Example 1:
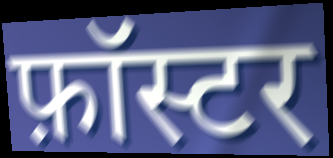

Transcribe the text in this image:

फ़ॉस्टर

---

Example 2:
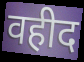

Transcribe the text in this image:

वहीद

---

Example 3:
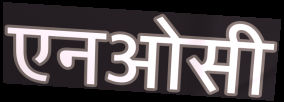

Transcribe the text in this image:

एनओसी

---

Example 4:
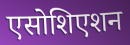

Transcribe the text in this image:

एसोशिएशन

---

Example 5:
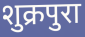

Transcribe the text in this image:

शुक्रपुरा